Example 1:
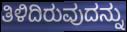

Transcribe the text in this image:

ತಿಳಿದಿರುವುದನ್ನು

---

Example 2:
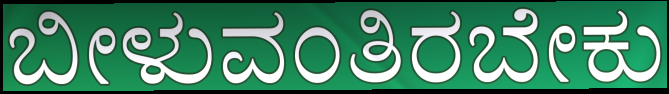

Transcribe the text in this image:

ಬೀಳುವಂತಿರಬೇಕು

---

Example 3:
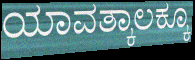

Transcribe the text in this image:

ಯಾವತ್ಕಾಲಕ್ಕೂ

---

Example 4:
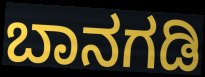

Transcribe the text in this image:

ಬಾನಗಡಿ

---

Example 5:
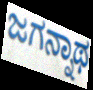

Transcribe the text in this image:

ಜಗನ್ನಾಥ